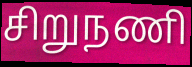
சிறுநணி